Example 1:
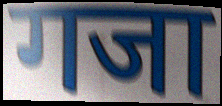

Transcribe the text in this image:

गजा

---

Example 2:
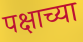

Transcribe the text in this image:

पक्षाच्या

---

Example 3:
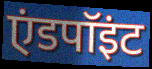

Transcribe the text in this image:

एंडपॉइंट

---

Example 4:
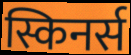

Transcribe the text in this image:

स्किनर्स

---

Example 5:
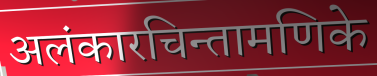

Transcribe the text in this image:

अलंकारचिन्तामणिके